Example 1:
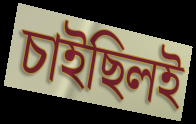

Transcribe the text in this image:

চাইছিলই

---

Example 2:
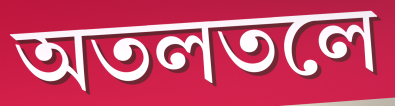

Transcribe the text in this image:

অতলতলে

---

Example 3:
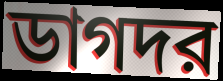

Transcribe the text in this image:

ডাগদর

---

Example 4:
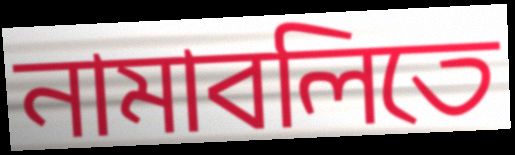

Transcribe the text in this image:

নামাবলিতে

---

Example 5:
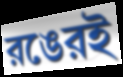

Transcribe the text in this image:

রঙেরই